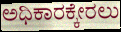
ಅಧಿಕಾರಕ್ಕೇರಲು